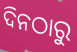
ଦିନଠାରୁ